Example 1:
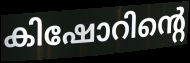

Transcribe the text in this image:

കിഷോറിന്റെ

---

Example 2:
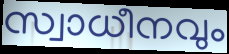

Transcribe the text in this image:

സ്വാധീനവും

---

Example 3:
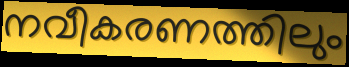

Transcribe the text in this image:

നവീകരണത്തിലും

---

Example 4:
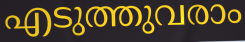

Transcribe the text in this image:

എടുത്തുവരാം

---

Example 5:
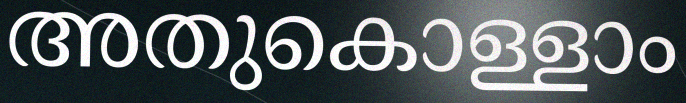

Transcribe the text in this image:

അതുകൊള്ളാം